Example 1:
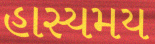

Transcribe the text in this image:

હાસ્યમય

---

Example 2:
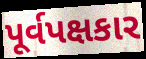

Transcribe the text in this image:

પૂર્વપક્ષકાર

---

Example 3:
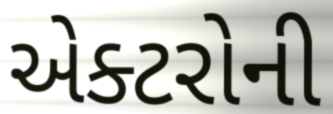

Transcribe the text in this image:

એક્ટરોની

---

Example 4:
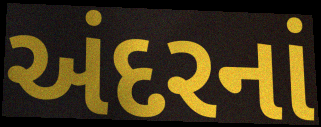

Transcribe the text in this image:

અંદરનાં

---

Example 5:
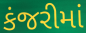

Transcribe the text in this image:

કંજરીમાં